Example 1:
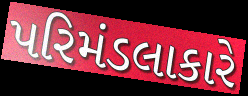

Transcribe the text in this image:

પરિમંડલાકારે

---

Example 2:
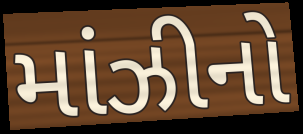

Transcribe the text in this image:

માંઝીનો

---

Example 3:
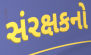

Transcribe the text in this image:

સંરક્ષકનો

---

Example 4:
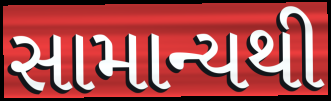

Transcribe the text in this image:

સામાન્યથી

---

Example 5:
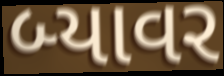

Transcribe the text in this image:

બ્યાવર